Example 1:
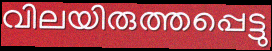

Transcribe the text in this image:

വിലയിരുത്തപ്പെട്ടു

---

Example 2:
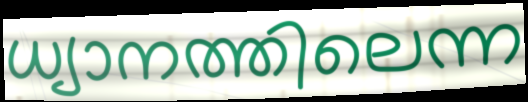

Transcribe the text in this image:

ധ്യാനത്തിലെന്ന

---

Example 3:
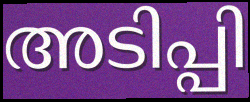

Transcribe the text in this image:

അടിപ്പി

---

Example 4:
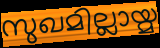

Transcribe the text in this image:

സുഖമില്ലായ്മ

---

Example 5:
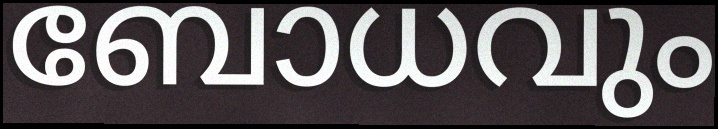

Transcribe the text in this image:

ബോധവും